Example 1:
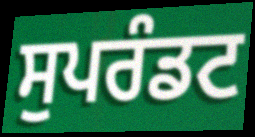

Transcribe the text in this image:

ਸੁਪਰੰਡਟ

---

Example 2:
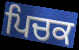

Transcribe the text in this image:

ਪਿਚਕ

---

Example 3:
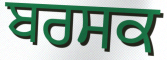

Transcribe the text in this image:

ਬਰਸਕ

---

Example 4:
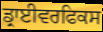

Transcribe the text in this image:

ਡ੍ਰਾਈਵਰਫਿਕਸ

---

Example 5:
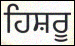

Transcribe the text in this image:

ਹਿਸ਼ਰੂ